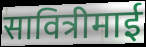
सावित्रीमाई